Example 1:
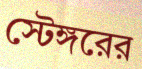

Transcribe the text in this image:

স্টেঙ্গরের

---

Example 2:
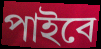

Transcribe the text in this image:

পাইবে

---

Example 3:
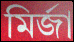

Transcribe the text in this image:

মির্জা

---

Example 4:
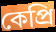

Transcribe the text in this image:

কেপ্রি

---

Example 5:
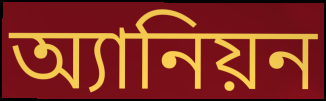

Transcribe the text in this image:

অ্যানিয়ন